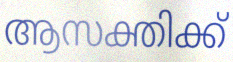
ആസക്തിക്ക്